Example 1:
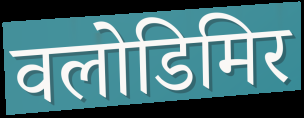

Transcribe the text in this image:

वलोडिमिर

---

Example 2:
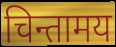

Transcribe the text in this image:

चिन्तामय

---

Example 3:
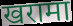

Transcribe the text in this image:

खरामा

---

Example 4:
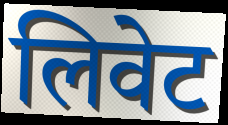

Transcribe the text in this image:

लिवेट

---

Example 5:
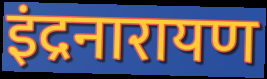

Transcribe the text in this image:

इंद्रनारायण